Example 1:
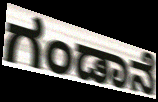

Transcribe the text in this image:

ಗಂಡಾನೆ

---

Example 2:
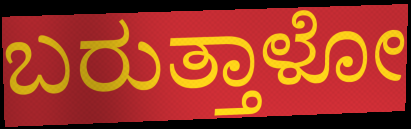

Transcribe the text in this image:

ಬರುತ್ತಾಳೋ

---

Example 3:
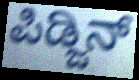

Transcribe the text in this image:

ಪಿಡ್ಜಿನ್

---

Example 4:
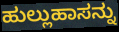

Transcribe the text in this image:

ಹುಲ್ಲುಹಾಸನ್ನು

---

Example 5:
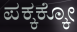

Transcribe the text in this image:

ಪಕ್ಕಕ್ಕೋ